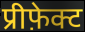
प्रीफ़ेक्ट